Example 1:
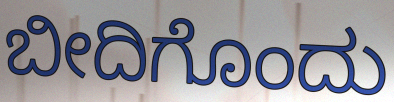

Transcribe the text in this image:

ಬೀದಿಗೊಂದು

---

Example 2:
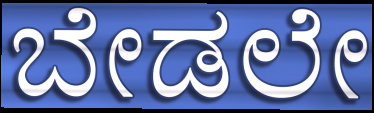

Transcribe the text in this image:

ಬೇಡಲೇ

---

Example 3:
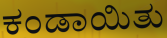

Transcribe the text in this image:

ಕಂಡಾಯಿತು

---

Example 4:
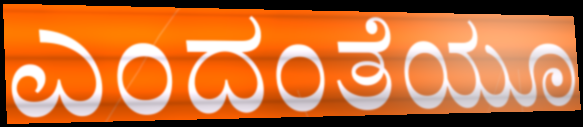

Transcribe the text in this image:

ಎಂದಂತೆಯೂ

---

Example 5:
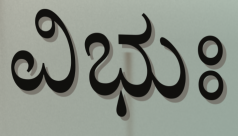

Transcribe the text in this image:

ವಿಭುಃ